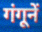
गंगूनें